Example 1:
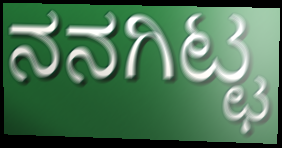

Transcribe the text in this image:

ನನಗಿಟ್ಟ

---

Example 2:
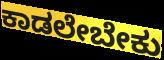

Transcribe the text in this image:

ಕಾಡಲೇಬೇಕು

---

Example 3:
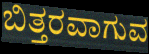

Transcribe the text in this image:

ಬಿತ್ತರವಾಗುವ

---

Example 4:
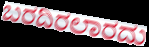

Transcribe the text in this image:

ಬರದಿರಲಾರದು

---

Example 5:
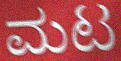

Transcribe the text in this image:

ಮಟ